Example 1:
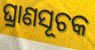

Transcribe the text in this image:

ଘ୍ରାଣସୂଚକ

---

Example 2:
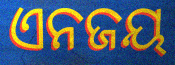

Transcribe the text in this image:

ଏନଜୟ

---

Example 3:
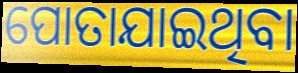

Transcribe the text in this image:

ପୋତାଯାଇଥିବା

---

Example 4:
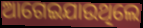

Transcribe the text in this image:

ଆଗେଇଯାଉଥିଲେ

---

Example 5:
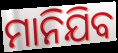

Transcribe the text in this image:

ମାନିଯିବ